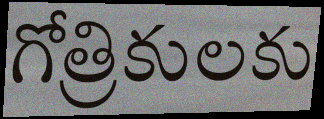
గోత్రికులకు